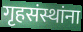
गृहसंस्थांना